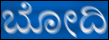
ಬೋದಿ